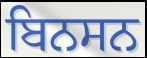
ਬਿਨਸਨ